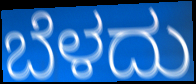
ಬೆಳದು